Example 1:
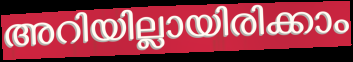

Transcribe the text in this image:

അറിയില്ലായിരിക്കാം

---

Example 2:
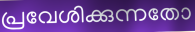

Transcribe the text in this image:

പ്രവേശിക്കുന്നതോ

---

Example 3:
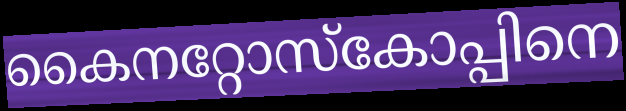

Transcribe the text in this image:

കൈനറ്റോസ്കോപ്പിനെ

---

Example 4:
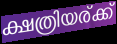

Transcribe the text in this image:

ക്ഷത്രിയര്ക്ക്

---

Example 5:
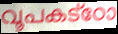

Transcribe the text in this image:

വൂപകട്ഠോ